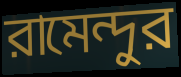
রামেন্দুর